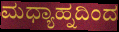
ಮಧ್ಯಾಹ್ನದಿಂದ